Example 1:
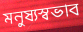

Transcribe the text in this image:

মনুষ্যস্বভাব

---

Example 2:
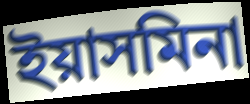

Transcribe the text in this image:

ইয়াসমিনা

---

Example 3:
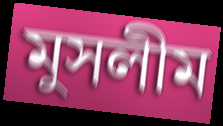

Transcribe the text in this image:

মুসলীম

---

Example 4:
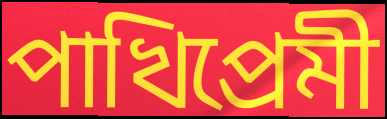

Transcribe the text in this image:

পাখিপ্রেমী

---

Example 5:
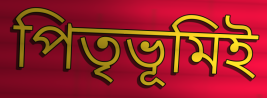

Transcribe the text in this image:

পিতৃভূমিই